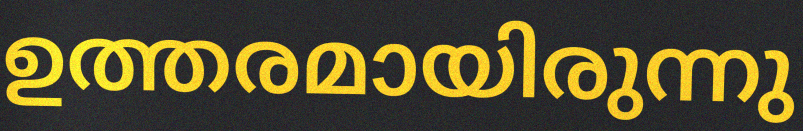
ഉത്തരമായിരുന്നു